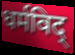
धर्मविद्